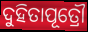
ଦୁହିତାପୂତ୍ରୌ